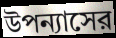
উপন্যাসের